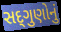
સદ્‌ગુણોનું